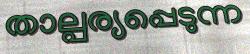
താല്പര്യപ്പെടുന്ന